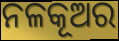
ନଳକୂଅର